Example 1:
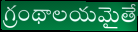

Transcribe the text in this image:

గ్రంథాలయమైతే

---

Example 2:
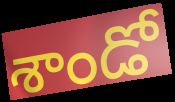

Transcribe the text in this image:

శాండో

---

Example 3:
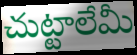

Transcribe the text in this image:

చుట్టాలేమీ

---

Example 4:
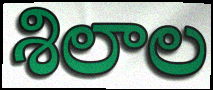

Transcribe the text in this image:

శిలాల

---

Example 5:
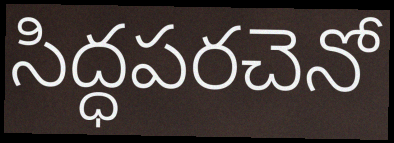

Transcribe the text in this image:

సిద్ధపరచెనో